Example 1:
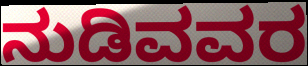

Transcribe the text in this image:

ನುಡಿವವರ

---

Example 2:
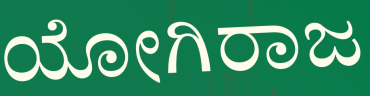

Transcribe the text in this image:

ಯೋಗಿರಾಜ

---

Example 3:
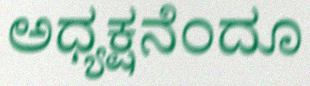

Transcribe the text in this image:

ಅಧ್ಯಕ್ಷನೆಂದೂ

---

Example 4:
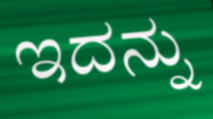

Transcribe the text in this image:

ಇದನ್ನು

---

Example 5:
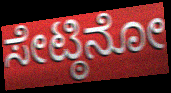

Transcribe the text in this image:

ಸೇಟ್ಠಿನೋ